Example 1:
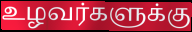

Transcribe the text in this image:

உழவர்களுக்கு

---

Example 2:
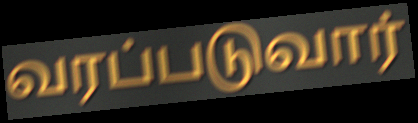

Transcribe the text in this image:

வரப்படுவார்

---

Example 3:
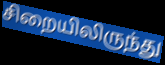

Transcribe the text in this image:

சிறையிலிருந்து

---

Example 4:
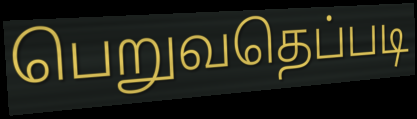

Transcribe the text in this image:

பெறுவதெப்படி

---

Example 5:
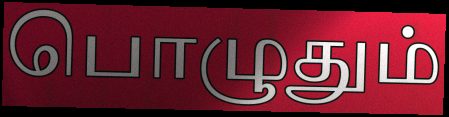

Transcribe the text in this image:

பொழுதும்